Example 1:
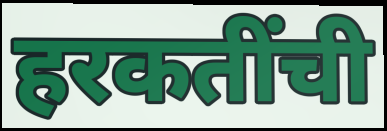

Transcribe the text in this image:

हरकतींची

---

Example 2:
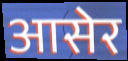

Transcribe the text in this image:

आसेर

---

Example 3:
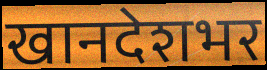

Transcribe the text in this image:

खानदेशभर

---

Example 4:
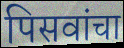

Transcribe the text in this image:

पिसवांचा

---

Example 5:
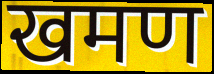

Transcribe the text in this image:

खमण